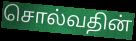
சொல்வதின்